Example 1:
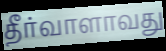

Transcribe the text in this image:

தீர்வாளாவது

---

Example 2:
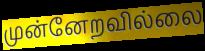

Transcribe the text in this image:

முன்னேறவில்லை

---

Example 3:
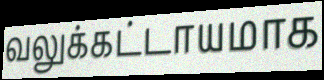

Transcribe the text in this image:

வலுக்கட்டாயமாக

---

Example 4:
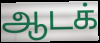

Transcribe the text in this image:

ஆடக்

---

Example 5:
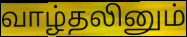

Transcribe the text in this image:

வாழ்தலினும்